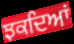
ਝਕਦਿਆਂ